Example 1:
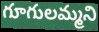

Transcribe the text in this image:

గూగులమ్మని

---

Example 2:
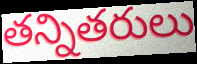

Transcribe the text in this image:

తన్నితరులు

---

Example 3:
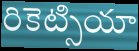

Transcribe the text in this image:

రికెట్సియా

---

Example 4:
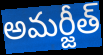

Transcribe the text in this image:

అమర్జీత్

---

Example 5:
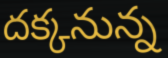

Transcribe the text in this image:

దక్కనున్న